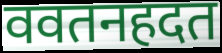
ववतनहदत